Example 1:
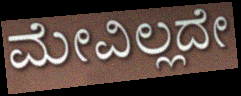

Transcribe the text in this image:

ಮೇವಿಲ್ಲದೇ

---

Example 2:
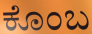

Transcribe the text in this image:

ಕೊಂಬ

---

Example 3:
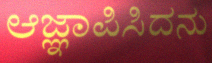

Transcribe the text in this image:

ಆಜ್ಞಾಪಿಸಿದನು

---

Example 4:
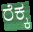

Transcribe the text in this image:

ರೆಕ್ಕ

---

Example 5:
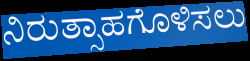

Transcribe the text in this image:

ನಿರುತ್ಸಾಹಗೊಳಿಸಲು